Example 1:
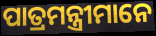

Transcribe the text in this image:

ପାତ୍ରମନ୍ତ୍ରୀମାନେ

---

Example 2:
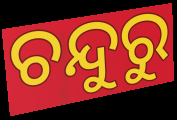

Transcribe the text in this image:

ଚନ୍ଦୁରୁ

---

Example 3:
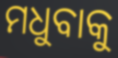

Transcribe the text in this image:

ମଧୁବାକୁ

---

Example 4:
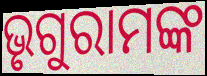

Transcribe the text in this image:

ଭୃଗୁରାମଙ୍କ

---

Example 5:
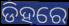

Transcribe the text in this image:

ଡିହରେ